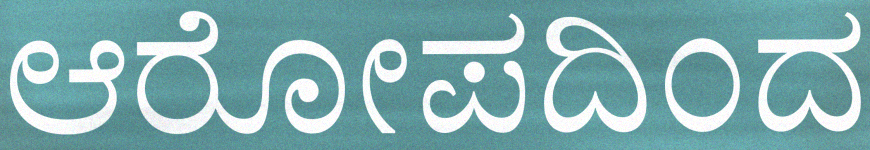
ಆರೋಪದಿಂದ